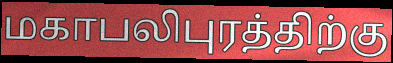
மகாபலிபுரத்திற்கு